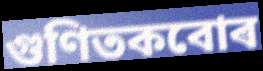
গুণিতকবোৰ